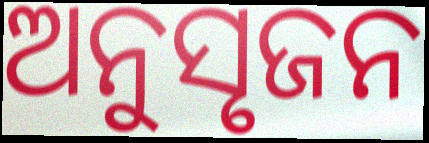
ଅନୁସୃଜନ